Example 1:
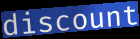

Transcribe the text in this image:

discount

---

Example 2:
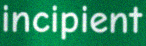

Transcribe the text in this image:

incipient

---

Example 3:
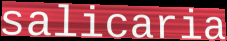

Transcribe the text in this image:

salicaria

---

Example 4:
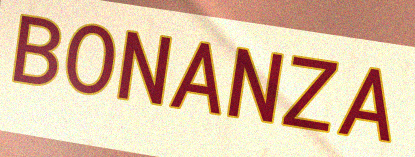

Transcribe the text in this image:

BONANZA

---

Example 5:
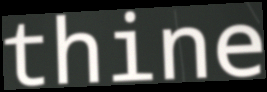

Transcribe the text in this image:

thine